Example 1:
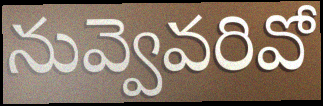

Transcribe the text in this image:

నువ్వెవరివో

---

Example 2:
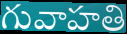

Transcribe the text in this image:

గువాహతి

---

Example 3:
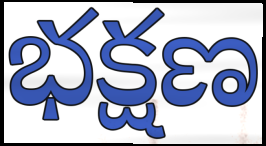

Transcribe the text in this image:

భక్షణ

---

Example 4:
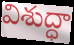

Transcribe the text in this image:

విశుద్ధా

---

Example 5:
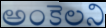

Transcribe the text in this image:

అంకెలని